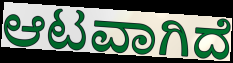
ಆಟವಾಗಿದೆ